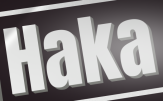
Haka